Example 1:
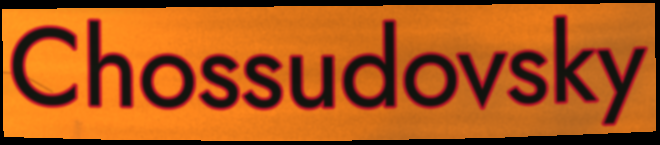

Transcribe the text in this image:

Chossudovsky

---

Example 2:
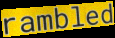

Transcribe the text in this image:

rambled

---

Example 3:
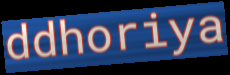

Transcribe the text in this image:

ddhoriya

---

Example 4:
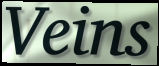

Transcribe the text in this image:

Veins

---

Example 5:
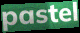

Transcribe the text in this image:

pastel